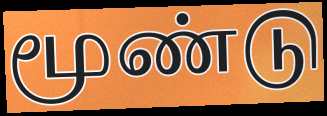
மூண்டு